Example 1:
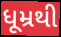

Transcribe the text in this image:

ધૂમ્રથી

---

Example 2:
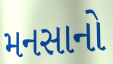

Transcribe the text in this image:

મનસાનો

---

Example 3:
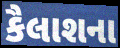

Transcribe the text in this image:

કૈલાશના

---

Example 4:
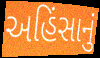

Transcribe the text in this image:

અહિંસાનું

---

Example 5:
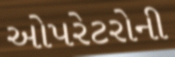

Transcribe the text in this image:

ઓપરેટરોની